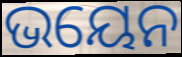
ଭୟେନ